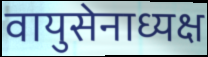
वायुसेनाध्यक्ष